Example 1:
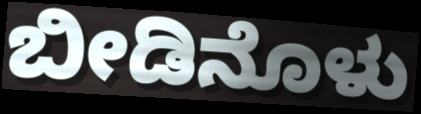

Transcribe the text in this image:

ಬೀಡಿನೊಳು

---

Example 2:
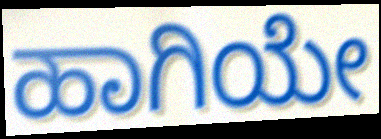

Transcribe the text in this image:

ಹಾಗಿಯೇ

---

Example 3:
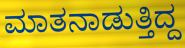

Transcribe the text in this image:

ಮಾತನಾಡುತ್ತಿದ್ದ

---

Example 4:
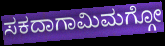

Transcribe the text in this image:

ಸಕದಾಗಾಮಿಮಗ್ಗೋ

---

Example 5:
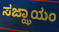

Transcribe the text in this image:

ಸಜ್ಝಾಯಂ